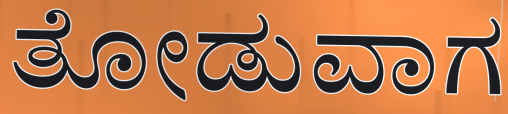
ತೋಡುವಾಗ